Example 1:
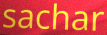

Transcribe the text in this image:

sachar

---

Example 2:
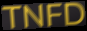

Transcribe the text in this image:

TNFD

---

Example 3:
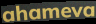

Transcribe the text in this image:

ahameva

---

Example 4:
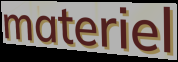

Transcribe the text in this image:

materiel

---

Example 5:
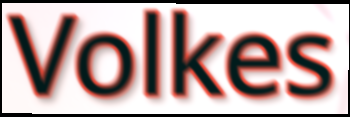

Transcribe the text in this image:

Volkes